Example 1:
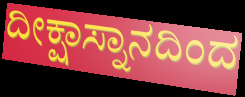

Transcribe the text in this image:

ದೀಕ್ಷಾಸ್ನಾನದಿಂದ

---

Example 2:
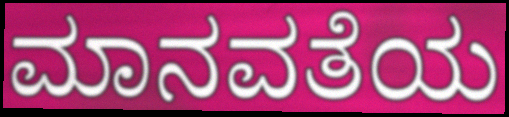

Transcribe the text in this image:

ಮಾನವತೆಯ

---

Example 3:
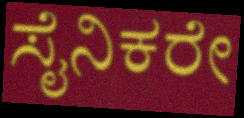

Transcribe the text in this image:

ಸೈನಿಕರೇ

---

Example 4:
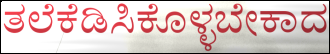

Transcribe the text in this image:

ತಲೆಕೆಡಿಸಿಕೊಳ್ಳಬೇಕಾದ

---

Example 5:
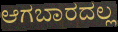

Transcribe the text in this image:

ಆಗಬಾರದಲ್ಲ